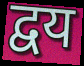
द्वय